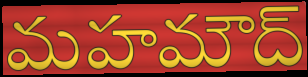
మహమౌద్